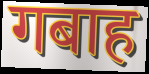
गबाह